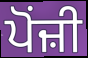
ਪੋਂਜ਼ੀ